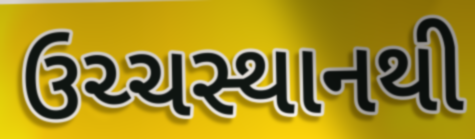
ઉચ્ચસ્થાનથી